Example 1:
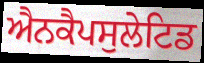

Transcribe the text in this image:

ਐਨਕੈਪਸੁਲੇਟਿਡ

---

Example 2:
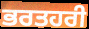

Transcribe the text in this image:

ਭਰਤਹਰੀ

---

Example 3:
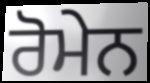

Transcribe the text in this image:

ਰੋਮੇਨ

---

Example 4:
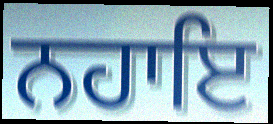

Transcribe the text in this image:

ਨਹਾਇ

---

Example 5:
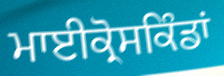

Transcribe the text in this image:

ਮਾਈਕ੍ਰੋਸਕਿੰਡਾਂ